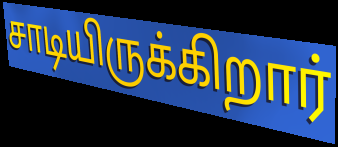
சாடியிருக்கிறார்